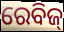
ରେବିଜ୍